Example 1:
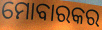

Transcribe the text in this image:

ମୋବାରକର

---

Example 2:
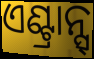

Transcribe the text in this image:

ଏଣ୍ଟ୍ରାନ୍ସ୍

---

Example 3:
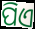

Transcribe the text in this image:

ପିଏ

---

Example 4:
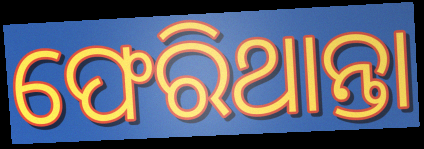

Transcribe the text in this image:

ଫେରିଥାନ୍ତା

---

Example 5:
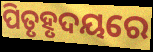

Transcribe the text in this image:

ପିତୃହୃଦୟରେ